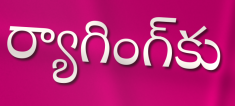
ర్యాగింగ్‌కు